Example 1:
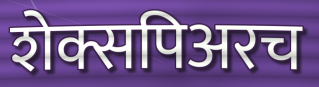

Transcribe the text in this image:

शेक्सपिअरच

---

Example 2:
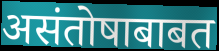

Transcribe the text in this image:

असंतोषाबाबत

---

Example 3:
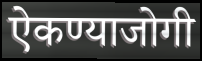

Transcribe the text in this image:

ऐकण्याजोगी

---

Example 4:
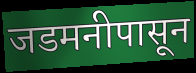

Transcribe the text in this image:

जडमनीपासून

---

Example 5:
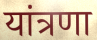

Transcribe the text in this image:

यांत्रणा